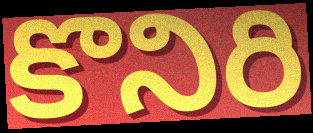
కొనిరి